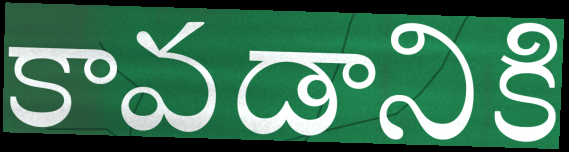
కావడానికి